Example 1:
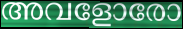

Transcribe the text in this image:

അവളോരോ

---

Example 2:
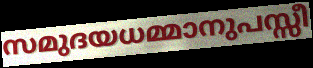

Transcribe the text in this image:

സമുദയധമ്മാനുപസ്സീ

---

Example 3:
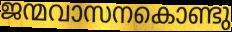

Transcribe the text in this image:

ജന്മവാസനകൊണ്ടു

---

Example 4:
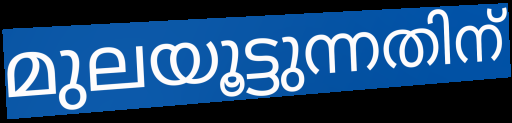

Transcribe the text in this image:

മുലയൂട്ടുന്നതിന്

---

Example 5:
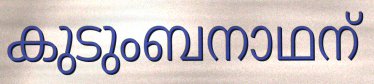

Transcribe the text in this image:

കുടുംബനാഥന്